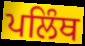
ਪਲਿੰਥ